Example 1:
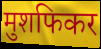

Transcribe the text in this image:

मुशफिकर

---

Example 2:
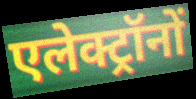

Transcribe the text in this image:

एलेक्ट्रॉनों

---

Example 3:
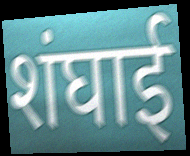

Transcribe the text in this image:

शंघाई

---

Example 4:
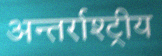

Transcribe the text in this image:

अन्तर्राश्ट्रीय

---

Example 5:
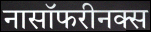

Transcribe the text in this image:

नासॉफरीनक्स